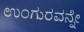
ಉಂಗುರವನ್ನೇ